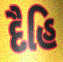
દૈહિ